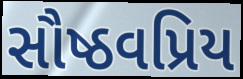
સૌષ્ઠવપ્રિય